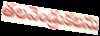
తలవెండ్రుకలను